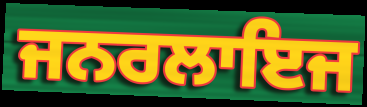
ਜਨਰਲਾਇਜ